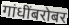
गांधींबरोबर